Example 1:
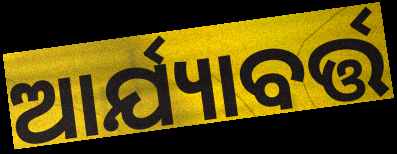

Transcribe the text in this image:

ଆର୍ଯ୍ୟାବର୍ତ୍ତ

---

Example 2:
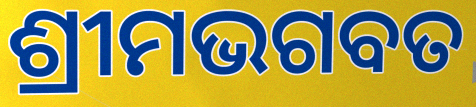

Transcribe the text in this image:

ଶ୍ରୀମଭଗବତ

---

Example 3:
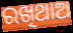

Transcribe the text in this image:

ରଖିଥାଅ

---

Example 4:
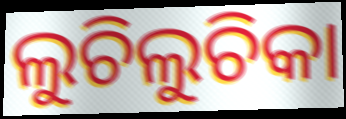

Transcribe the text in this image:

ଲୁଚିଲୁଚିକା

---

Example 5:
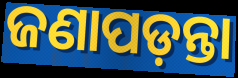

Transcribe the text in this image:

ଜଣାପଡ଼ନ୍ତା